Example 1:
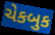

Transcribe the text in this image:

ચેકબુક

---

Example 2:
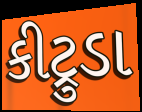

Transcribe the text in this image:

કીટ્રુડા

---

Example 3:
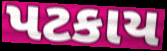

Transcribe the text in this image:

પટકાય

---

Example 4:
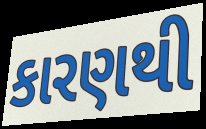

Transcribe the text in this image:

કારણથી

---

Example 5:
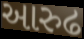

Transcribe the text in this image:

આરુઢ